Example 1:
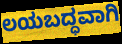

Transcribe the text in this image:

ಲಯಬದ್ಧವಾಗಿ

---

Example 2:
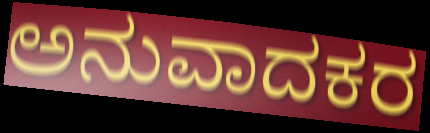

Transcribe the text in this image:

ಅನುವಾದಕರ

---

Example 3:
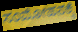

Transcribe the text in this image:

ಸಂಮೋಹನಕ್ಕೆ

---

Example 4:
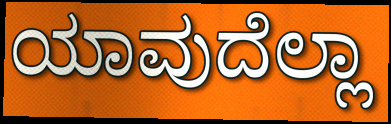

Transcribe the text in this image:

ಯಾವುದೆಲ್ಲಾ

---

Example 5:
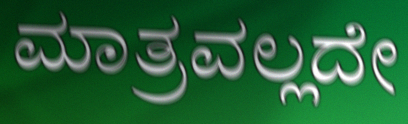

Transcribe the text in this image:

ಮಾತ್ರವಲ್ಲದೇ